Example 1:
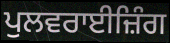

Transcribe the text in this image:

ਪੁਲਵਰਾਈਜ਼ਿੰਗ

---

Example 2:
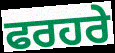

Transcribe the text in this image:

ਫਰਹਰੇ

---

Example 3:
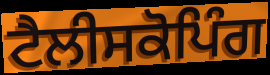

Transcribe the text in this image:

ਟੈਲੀਸਕੋਪਿੰਗ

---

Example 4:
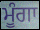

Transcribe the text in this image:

ਮੂੰਗਾ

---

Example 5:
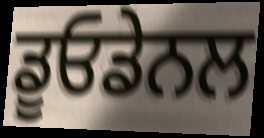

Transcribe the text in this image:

ਡੂਓਡੇਨਲ